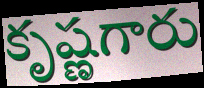
కృష్ణగారు